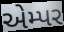
એમ્પર